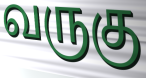
வருகு